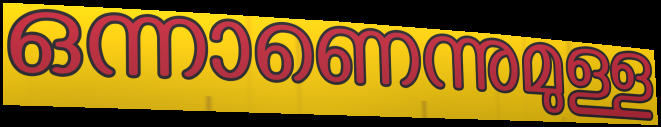
ഒന്നാണെന്നുമുള്ള